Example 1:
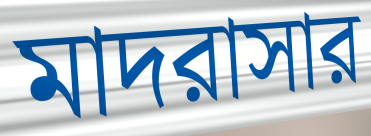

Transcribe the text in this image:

মাদরাসার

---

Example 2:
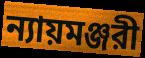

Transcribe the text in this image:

ন্যায়মঞ্জরী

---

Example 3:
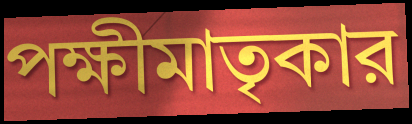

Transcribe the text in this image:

পক্ষীমাতৃকার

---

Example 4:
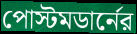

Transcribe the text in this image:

পোস্টমডার্নের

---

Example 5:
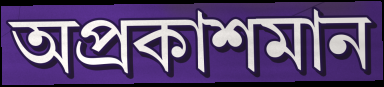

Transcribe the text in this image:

অপ্রকাশমান